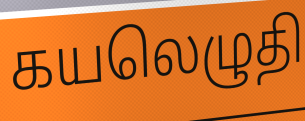
கயலெழுதி